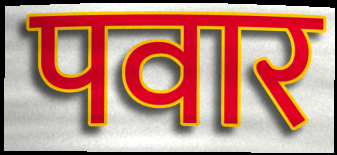
पवार